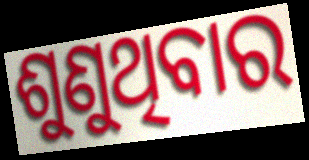
ଶୁଣୁଥିବାର